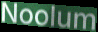
Noolum